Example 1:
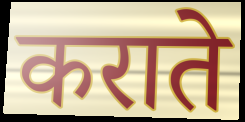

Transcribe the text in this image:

कराते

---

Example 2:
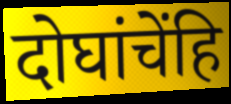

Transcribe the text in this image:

दोघांचेंहि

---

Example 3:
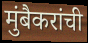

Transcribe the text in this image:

मुंबैकरांची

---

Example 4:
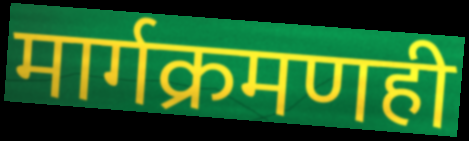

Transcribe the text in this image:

मार्गक्रमणही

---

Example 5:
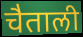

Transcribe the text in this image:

चैताली